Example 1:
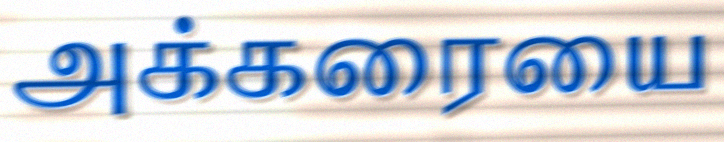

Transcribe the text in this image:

அக்கரையை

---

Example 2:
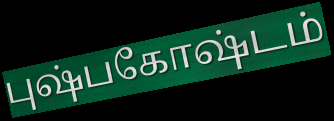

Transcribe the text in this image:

புஷ்பகோஷ்டம்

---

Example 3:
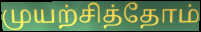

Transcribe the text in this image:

முயற்சித்தோம்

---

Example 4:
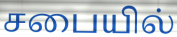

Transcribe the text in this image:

சபையில்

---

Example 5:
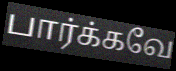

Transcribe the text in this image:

பார்க்கவே